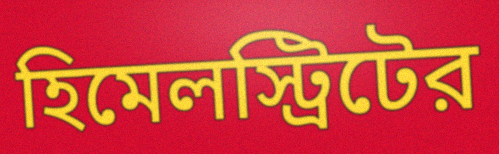
হিমেলস্ট্রিটের